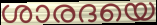
ശാരദയെ